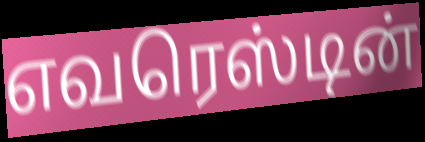
எவரெஸ்டின்